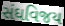
સંઘવિજય